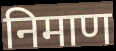
निमाण